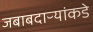
जबाबदाऱ्यांकडे